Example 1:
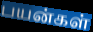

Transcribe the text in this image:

பயன்கள்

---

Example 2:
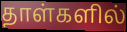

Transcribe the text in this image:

தாள்களில்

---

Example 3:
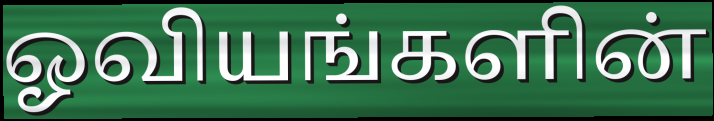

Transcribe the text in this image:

ஓவியங்களின்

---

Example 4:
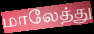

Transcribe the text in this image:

மாலேத்து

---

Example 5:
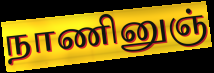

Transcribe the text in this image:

நாணினுஞ்